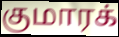
குமாரக்